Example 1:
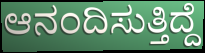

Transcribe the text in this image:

ಆನಂದಿಸುತ್ತಿದ್ದೆ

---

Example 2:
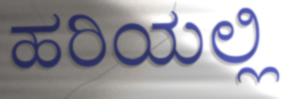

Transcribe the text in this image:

ಹರಿಯಲ್ಲಿ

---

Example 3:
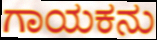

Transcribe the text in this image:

ಗಾಯಕನು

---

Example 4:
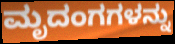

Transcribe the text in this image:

ಮೃದಂಗಗಳನ್ನು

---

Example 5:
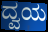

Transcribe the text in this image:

ದ್ವಯ